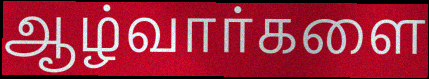
ஆழ்வார்களை